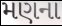
મણના